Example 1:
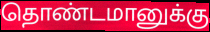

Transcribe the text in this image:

தொண்டமானுக்கு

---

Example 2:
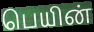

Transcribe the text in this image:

பெயின்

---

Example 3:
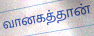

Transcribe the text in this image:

வானகத்தான்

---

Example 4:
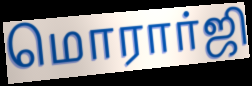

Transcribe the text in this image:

மொரார்ஜி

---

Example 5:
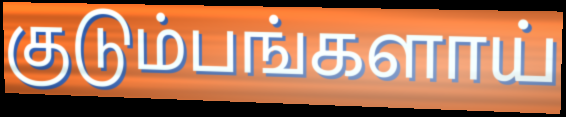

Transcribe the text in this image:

குடும்பங்களாய்